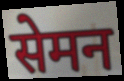
सेमन